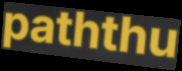
paththu